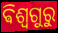
ଵିଶ୍ଵଗୁରୁ